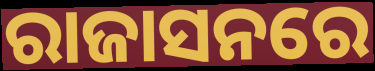
ରାଜାସନରେ